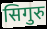
सिगुरु